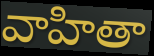
వాహితా